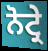
ਨੋਟ੍ਰੇ